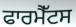
ਫਾਰਮੈੱਟਸ